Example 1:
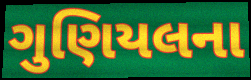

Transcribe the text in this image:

ગુણિયલના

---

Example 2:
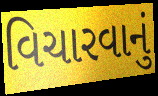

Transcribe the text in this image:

વિચારવાનું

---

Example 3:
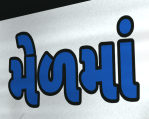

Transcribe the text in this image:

મેળમાં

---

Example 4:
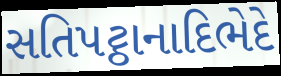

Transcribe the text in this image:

સતિપટ્ઠાનાદિભેદે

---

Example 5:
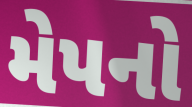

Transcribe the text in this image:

મેપનો